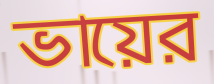
ভায়ের